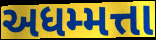
અધમ્મત્તા